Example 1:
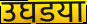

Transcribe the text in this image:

उघडया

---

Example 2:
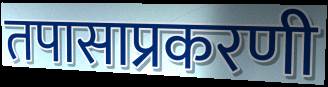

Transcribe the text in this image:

तपासाप्रकरणी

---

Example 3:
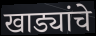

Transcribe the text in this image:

खाड्यांचे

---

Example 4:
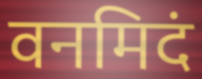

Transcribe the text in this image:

वनमिदं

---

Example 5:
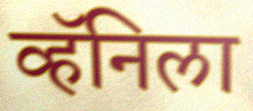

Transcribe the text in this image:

व्हॅनिला